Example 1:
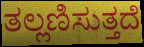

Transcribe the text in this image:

ತಲ್ಲಣಿಸುತ್ತದೆ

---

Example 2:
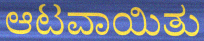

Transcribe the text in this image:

ಆಟವಾಯಿತು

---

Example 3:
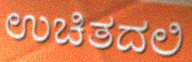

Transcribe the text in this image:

ಉಚಿತದಲಿ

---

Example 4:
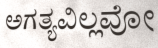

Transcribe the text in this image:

ಅಗತ್ಯವಿಲ್ಲವೋ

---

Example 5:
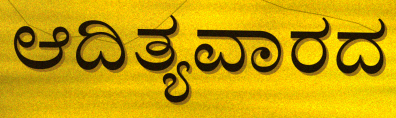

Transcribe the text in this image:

ಆದಿತ್ಯವಾರದ